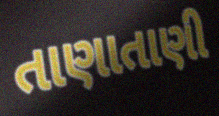
તાણાતાણી